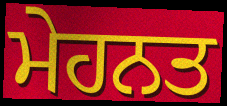
ਮੇਹਨਤ